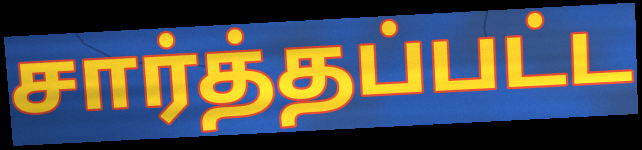
சார்த்தப்பட்ட